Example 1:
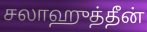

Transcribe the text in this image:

சலாஹுத்தீன்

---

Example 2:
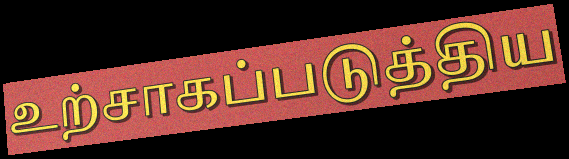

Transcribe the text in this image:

உற்சாகப்படுத்திய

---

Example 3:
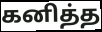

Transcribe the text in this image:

கனித்த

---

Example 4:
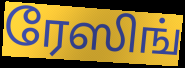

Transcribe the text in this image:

ரேஸிங்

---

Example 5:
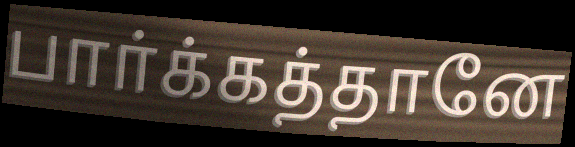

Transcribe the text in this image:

பார்க்கத்தானே